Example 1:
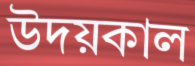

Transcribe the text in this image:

উদয়কাল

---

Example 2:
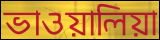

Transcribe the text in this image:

ভাওয়ালিয়া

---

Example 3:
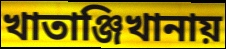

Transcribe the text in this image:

খাতাঞ্জিখানায়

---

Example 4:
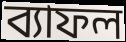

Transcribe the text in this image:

ব্যাফল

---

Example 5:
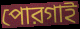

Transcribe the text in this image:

পোরগাই